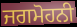
ਜਗਮੋਹਨੀ